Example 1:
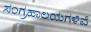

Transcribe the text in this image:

ಸಂಗ್ರಹಾಲಯಗಳಿವೆ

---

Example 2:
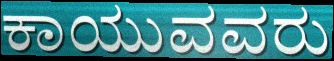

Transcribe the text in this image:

ಕಾಯುವವರು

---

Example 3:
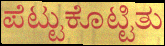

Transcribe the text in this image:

ಪೆಟ್ಟುಕೊಟ್ಟಿತು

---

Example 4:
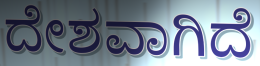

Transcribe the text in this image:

ದೇಶವಾಗಿದೆ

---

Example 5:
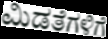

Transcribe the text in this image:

ಮಿಡತೆಗಳಿಗೆ